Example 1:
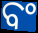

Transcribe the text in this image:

ବଂ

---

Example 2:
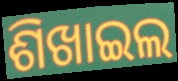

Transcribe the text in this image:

ଶିଖାଇଲ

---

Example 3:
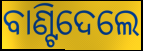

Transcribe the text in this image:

ବାଣ୍ଟିଦେଲେ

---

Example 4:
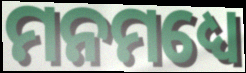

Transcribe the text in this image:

ମନମଧ୍ୟେ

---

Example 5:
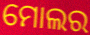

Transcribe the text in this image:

ମୋଲର